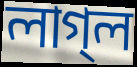
লাগ্‌ল